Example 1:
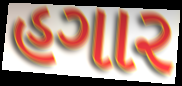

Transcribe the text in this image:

હગાર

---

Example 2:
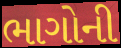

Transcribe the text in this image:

ભાગોની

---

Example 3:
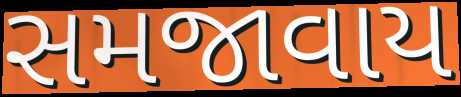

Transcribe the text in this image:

સમજાવાય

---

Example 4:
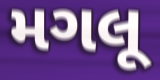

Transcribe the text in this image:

મગલૂ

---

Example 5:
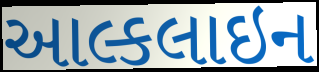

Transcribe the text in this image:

આલ્કલાઇન